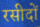
रसीदों